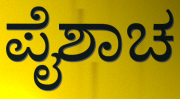
ಪೈಶಾಚ